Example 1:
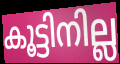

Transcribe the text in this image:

കൂട്ടിനില്ല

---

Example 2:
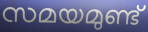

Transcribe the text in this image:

സമയമുണ്ട്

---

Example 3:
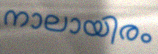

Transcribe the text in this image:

നാലായിരം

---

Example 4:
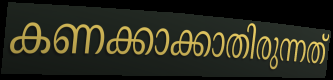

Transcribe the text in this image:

കണക്കാക്കാതിരുന്നത്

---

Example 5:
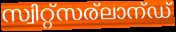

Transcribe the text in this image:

സ്വിറ്റ്സര്ലാന്ഡ്